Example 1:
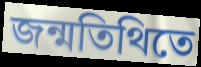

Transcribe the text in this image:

জন্মতিথিতে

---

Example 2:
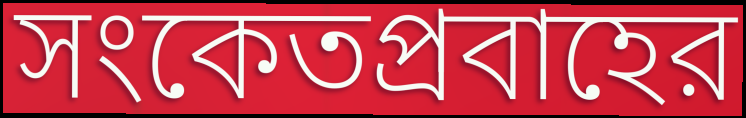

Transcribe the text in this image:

সংকেতপ্রবাহের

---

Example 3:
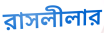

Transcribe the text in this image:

রাসলীলার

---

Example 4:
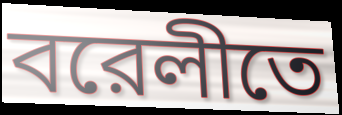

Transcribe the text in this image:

বরেলীতে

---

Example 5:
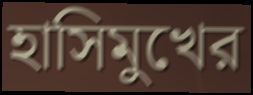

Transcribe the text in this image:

হাসিমুখের